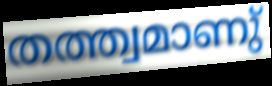
തത്ത്വമാണു്